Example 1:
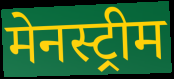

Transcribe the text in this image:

मेनस्ट्रीम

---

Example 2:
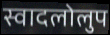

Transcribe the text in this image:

स्वादलोलुप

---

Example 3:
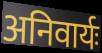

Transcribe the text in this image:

अनिवार्यः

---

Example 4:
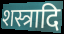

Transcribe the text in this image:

शस्त्रादि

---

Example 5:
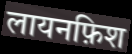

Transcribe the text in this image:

लायनफ़िश